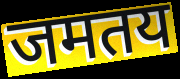
जमतय